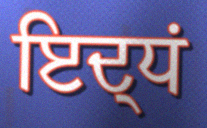
ਇਦ੍ਧਂ